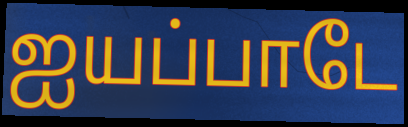
ஐயப்பாடே